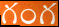
గంగ